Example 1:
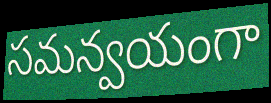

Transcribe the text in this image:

సమన్వయంగా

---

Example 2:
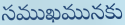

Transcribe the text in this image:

సముఖమునకు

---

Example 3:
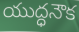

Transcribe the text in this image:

యుద్ధనౌక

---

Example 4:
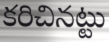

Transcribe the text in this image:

కరిచినట్టు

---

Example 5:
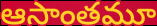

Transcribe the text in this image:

ఆసాంతమూ